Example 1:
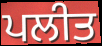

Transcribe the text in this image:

ਪਲੀਤ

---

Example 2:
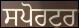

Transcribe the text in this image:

ਸਪੋਰਟਰ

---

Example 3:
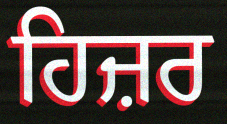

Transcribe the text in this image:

ਹਿਜ਼ਰ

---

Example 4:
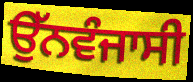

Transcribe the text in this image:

ਉੱਨਵੰਜਾਸੀ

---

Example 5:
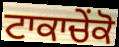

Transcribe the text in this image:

ਟਾਕਾਚੇਂਕੋ